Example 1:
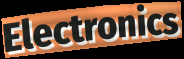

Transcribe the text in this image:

Electronics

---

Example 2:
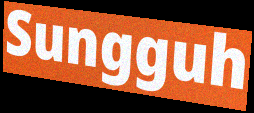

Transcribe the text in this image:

Sungguh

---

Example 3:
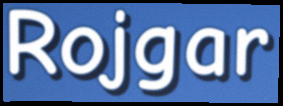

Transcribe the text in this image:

Rojgar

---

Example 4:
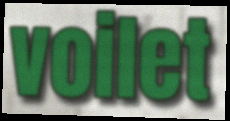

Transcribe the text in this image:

voilet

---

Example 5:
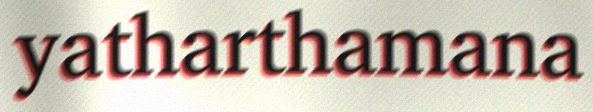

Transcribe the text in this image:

yatharthamana